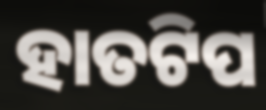
ହାତଟିପ